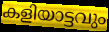
കളിയാട്ടവും